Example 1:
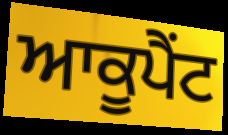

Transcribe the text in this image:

ਆਕੂਪੈਂਟ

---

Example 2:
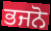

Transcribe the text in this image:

ਭਜਨੋ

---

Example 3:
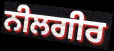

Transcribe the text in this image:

ਨੀਲਗੀਰ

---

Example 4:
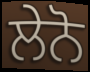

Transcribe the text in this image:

ਲੇਨੋ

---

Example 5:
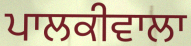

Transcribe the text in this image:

ਪਾਲਕੀਵਾਲਾ